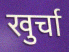
खुर्चा